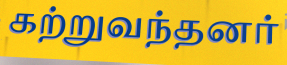
கற்றுவந்தனர்